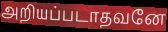
அறியப்படாதவனே